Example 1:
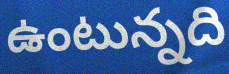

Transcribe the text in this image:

ఉంటున్నది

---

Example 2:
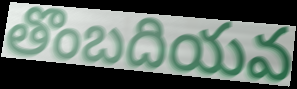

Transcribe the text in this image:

తొంబదియవ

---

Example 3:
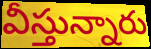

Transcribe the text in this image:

వీస్తున్నారు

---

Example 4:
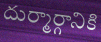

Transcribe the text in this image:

దుర్మార్గానికి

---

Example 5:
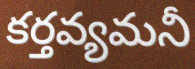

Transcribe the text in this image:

కర్తవ్యమనీ